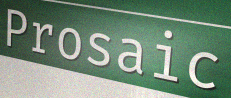
Prosaic